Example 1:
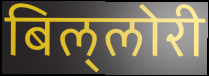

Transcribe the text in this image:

बिल्लोरी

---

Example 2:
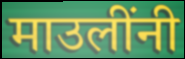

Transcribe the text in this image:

माउलींनी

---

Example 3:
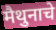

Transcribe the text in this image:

मैथुनाचे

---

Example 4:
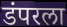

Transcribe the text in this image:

डंपरला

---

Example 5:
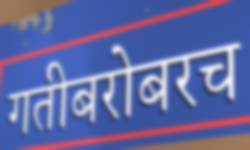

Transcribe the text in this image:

गतीबरोबरच